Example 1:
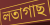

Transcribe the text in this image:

লতাগাছ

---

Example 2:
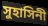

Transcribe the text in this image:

সুহাসিনী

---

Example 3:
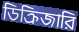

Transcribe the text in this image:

ডিক্রিজারি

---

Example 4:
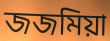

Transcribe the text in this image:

জজমিয়া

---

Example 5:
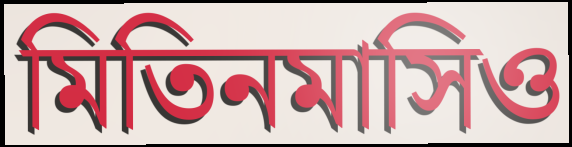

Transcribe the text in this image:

মিতিনমাসিও